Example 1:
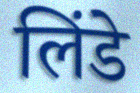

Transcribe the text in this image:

लिंडे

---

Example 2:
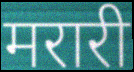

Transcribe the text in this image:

मरारी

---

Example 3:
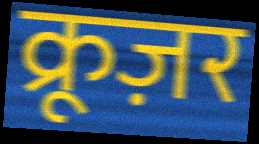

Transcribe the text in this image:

क्रूज़र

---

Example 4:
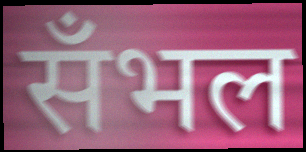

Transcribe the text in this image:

सँभल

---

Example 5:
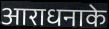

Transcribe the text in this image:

आराधनाके